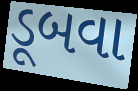
ડૂબવા